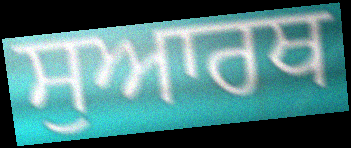
ਸੁਆਰਥ